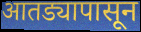
आतड्यापासून